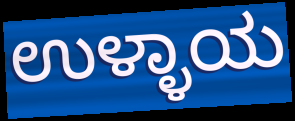
ಉಳ್ಳಾಯ